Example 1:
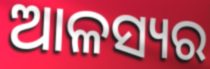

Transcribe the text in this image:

ଆଳସ୍ୟର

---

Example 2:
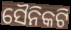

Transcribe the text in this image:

ସୈନିକଟି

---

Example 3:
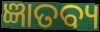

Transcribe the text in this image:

ଜ୍ଞାତବ୍ୟ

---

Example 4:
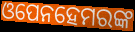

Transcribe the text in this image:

ଓପେନହେମରଙ୍କ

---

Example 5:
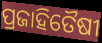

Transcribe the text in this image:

ପ୍ରଜାହିତୈଷୀ